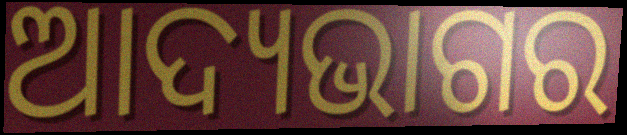
ଆଦ୍ୟଭାଗର